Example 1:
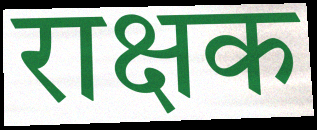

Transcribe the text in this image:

राक्षक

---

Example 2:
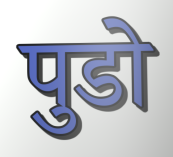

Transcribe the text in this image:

पुडो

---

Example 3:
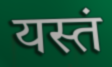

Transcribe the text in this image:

यस्तं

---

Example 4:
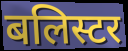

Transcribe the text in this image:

बलिस्टर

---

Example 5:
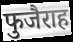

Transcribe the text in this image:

फुजैराह